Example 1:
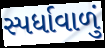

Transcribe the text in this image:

સ્પર્ધાવાળું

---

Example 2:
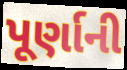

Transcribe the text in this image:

પૂર્ણાની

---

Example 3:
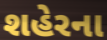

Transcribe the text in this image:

શહેરના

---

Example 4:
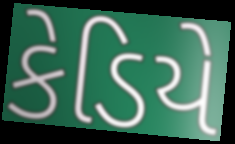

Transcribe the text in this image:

કેડિયે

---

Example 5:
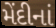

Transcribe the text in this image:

મેંદીનાં